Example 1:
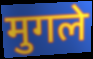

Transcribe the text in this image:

मुगले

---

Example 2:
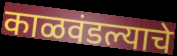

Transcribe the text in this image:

काळवंडल्याचे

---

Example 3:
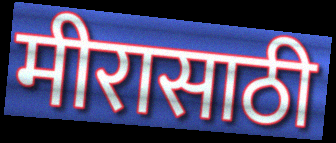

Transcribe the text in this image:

मीरासाठी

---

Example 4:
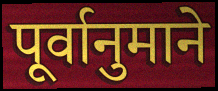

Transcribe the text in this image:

पूर्वानुमाने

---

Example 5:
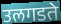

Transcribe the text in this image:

उलगडते